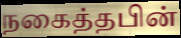
நகைத்தபின்